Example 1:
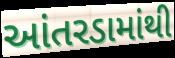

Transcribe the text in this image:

આંતરડામાંથી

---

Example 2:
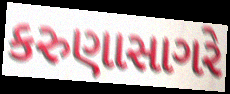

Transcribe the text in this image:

કરુણાસાગરે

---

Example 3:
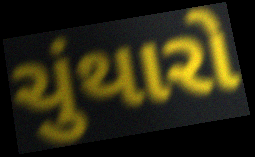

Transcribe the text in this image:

ચુંથારો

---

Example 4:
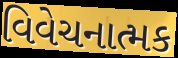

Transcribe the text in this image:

વિવેચનાત્મક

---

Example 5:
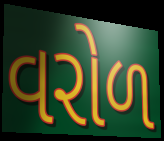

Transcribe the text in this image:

વરોળ